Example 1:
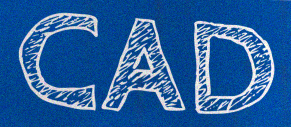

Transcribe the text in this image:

CAD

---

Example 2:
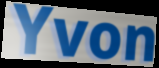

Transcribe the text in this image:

Yvon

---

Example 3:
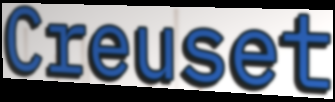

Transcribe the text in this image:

Creuset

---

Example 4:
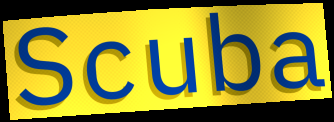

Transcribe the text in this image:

Scuba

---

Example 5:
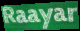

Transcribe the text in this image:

Raayar